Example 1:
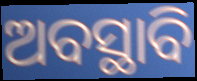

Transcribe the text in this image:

ଅବସ୍ଥାବି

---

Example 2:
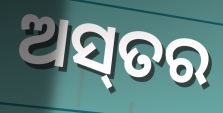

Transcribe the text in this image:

ଅସ୍‌ତର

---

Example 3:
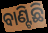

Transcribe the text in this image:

ବାଣ୍ଟିଛି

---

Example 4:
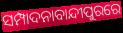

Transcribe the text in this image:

ସମ୍ପାଦନାବାନ୍ଦୀପୁରରେ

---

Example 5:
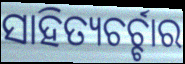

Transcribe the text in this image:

ସାହିତ୍ୟଚର୍ଚ୍ଚାର